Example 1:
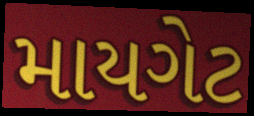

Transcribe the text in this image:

માયગેટ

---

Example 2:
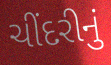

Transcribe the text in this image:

ચીંદરીનું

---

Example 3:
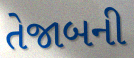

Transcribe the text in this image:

તેજાબની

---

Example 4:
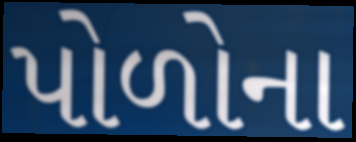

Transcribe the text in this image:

પોળોના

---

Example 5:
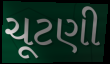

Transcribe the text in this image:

ચૂટણી